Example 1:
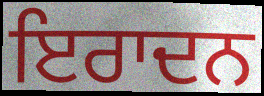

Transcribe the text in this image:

ਇਰਾਦਨ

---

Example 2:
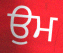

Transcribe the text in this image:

ਉਮ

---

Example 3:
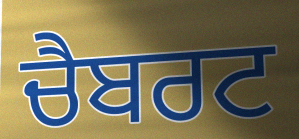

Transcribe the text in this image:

ਚੈਬਰਟ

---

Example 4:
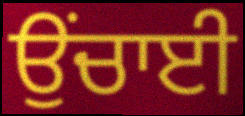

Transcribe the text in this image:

ਉਂਚਾਈ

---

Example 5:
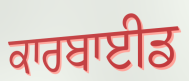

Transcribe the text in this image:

ਕਾਰਬਾਈਡ